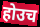
होउच